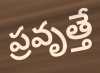
ప్రవృత్తే